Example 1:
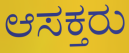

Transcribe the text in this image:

ಆಸಕ್ತರು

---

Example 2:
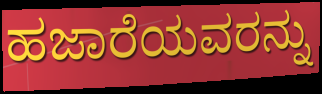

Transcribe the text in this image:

ಹಜಾರೆಯವರನ್ನು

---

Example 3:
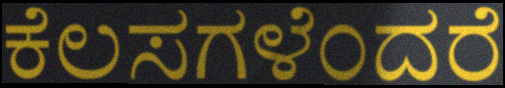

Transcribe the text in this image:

ಕೆಲಸಗಳೆಂದರೆ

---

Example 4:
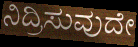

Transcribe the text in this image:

ನಿದ್ರಿಸುವುದೇ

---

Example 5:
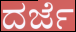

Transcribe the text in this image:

ದರ್ಜೆ